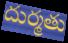
దుర్మతు